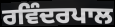
ਰਵਿੰਦਰਪਾਲ